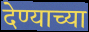
देण्याच्या